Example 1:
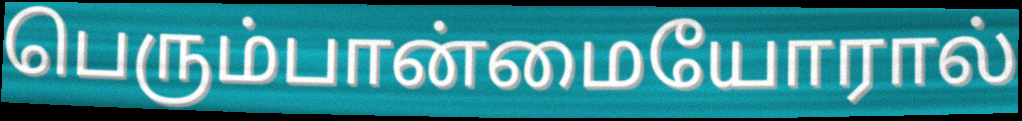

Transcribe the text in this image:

பெரும்பான்மையோரால்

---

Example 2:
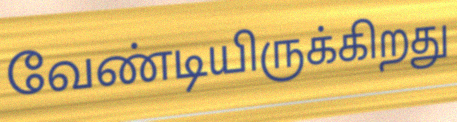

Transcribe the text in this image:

வேண்டியிருக்கிறது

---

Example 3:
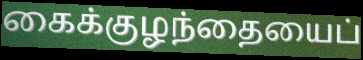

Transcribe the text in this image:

கைக்குழந்தையைப்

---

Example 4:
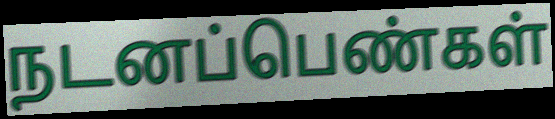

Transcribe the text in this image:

நடனப்பெண்கள்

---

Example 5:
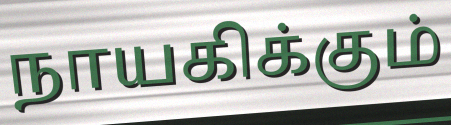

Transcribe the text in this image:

நாயகிக்கும்